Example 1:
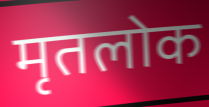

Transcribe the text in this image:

मृतलोक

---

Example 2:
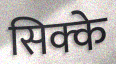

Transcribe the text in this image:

सिक्के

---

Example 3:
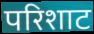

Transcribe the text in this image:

परिशाट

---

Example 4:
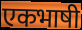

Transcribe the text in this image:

एकभाषी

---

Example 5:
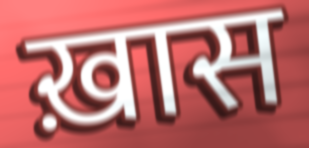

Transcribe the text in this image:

ख़ास